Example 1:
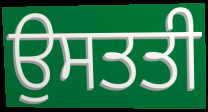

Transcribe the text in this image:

ਉਸਤਤੀ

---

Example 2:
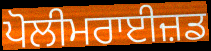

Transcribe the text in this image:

ਪੋਲੀਮਰਾਈਜ਼ਡ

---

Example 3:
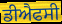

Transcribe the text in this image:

ਡੀਐਫਸੀ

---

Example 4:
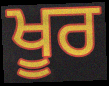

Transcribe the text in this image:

ਖੂਰ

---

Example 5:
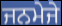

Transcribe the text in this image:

ਜਨਮੇਜੇ